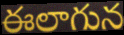
ఈలాగున